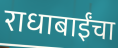
राधाबाईंचा